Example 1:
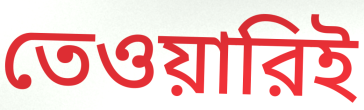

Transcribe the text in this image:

তেওয়ারিই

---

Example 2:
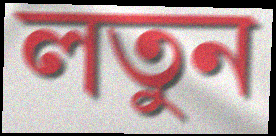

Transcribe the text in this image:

লতুন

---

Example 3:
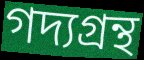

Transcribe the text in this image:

গদ্যগ্রন্থ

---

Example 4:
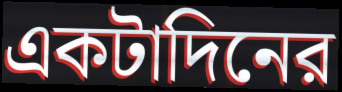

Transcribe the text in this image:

একটাদিনের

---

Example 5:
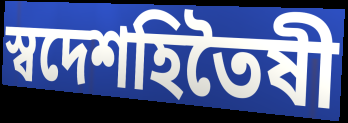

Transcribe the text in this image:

স্বদেশহিতৈষী